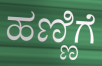
ಹಣ್ಣಿಗೆ